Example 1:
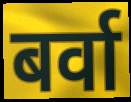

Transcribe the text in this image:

बर्वा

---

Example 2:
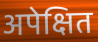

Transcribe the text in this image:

अपेक्षित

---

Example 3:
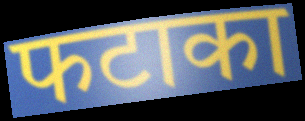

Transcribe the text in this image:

फटाका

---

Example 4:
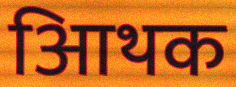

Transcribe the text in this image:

आिथक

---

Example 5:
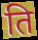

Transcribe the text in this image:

ति